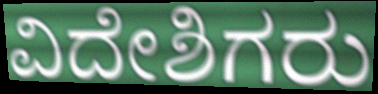
ವಿದೇಶಿಗರು